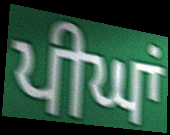
ਪੀਘਾਂ